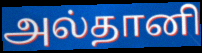
அல்தானி